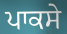
ਪਾਕਸੇ